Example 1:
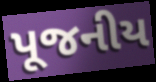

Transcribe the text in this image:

પૂજનીય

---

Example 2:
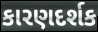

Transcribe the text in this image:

કારણદર્શક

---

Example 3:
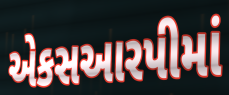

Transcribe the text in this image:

એકસઆરપીમાં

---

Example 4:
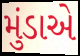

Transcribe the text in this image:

મુંડાએ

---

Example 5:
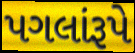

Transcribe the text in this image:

પગલાંરૂપે